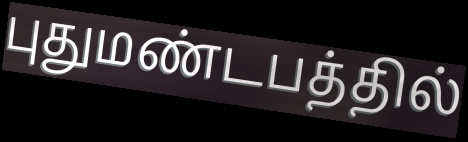
புதுமண்டபத்தில்